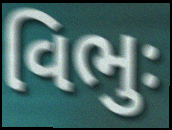
વિભુઃ